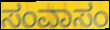
ಸಂವಾಸಂ